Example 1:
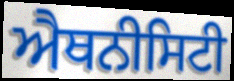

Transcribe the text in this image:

ਐਥਨੀਸਿਟੀ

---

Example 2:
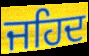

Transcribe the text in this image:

ਜਹਿਦ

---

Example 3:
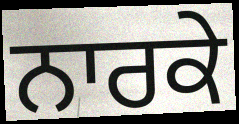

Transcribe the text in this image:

ਨਾਰਕੇ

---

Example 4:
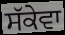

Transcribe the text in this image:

ਸੱਕੇਵਾ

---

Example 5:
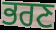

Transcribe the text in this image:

ਭਰਣ